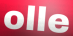
olle